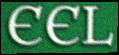
EEL